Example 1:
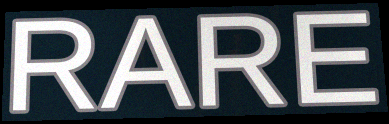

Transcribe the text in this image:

RARE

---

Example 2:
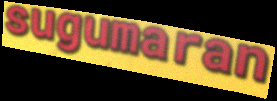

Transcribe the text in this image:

sugumaran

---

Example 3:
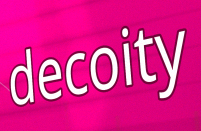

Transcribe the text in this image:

decoity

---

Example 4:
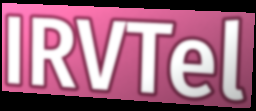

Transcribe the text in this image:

IRVTel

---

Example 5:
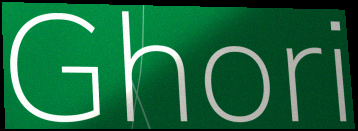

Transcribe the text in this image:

Ghori